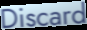
Discard